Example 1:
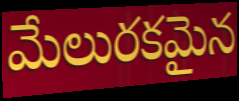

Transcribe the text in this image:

మేలురకమైన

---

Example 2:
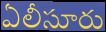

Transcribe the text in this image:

ఏలీసూరు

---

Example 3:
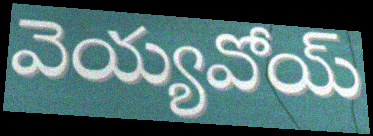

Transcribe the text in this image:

వెయ్యవోయ్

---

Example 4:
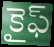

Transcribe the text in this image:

కైఫ్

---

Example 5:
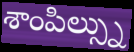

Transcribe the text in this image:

శాంపిల్స్ను